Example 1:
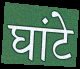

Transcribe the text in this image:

घांटे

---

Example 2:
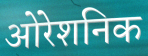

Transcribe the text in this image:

ओरेशनिक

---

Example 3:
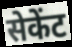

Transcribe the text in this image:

सेकेंट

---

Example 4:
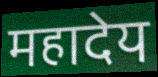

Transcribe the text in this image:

महादेय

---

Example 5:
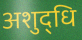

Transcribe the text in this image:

अशुद्धि